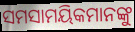
ସମସାମୟିକମାନଙ୍କୁ